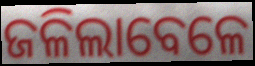
ଜଳିଲାବେଳେ